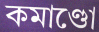
কমাণ্ডো